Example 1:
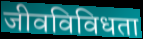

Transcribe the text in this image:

जीवविविधता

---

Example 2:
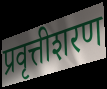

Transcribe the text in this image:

प्रवृत्तीशरण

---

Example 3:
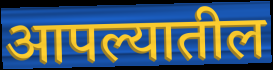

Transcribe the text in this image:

आपल्यातील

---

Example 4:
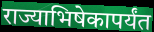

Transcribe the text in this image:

राज्याभिषेकापर्यंत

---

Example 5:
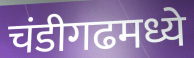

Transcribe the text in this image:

चंडीगढमध्ये